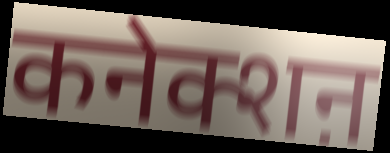
कनेक्शऩ